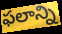
ఫలాన్ని